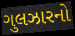
ગુલઝારનો